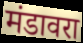
मंडावरा